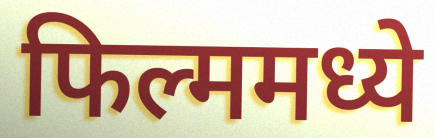
फिल्ममध्ये